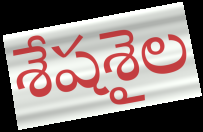
శేషశైల